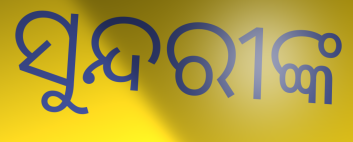
ସୁନ୍ଦରୀଙ୍କ